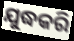
ଯୁଦ୍ଧକରି